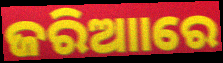
ଜରିଆାରେ